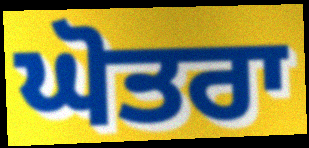
ਘੋਤਰਾ